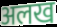
अलख